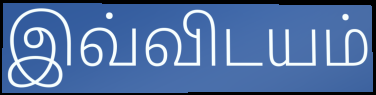
இவ்விடயம்